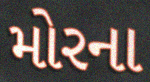
મોરના